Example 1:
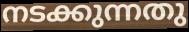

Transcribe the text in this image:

നടക്കുന്നതു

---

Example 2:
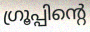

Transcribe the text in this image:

ഗ്രൂപ്പിന്റെ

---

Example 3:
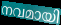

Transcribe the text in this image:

നവമായി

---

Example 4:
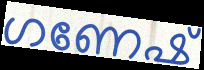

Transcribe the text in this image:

ഗണേഷ്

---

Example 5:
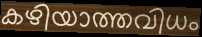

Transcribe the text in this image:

കഴിയാത്തവിധം